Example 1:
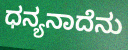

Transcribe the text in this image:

ಧನ್ಯನಾದೆನು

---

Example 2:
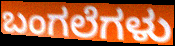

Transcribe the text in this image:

ಬಂಗಲೆಗಳು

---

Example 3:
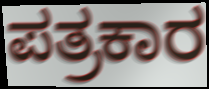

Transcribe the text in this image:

ಪತ್ರಕಾರ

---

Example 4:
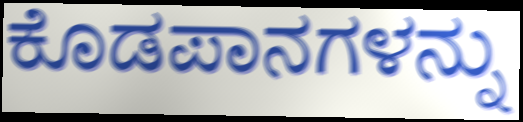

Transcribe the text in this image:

ಕೊಡಪಾನಗಳನ್ನು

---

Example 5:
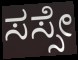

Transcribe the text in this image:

ಸಸ್ಸೇ